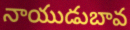
నాయుడుబావ